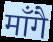
माँगै